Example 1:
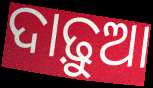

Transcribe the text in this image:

ଦାଢ଼ୁଆ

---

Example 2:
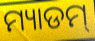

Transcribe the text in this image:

ମ୍ୟାଡମ୍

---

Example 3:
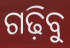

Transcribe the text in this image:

ଗଢ଼ିବୁ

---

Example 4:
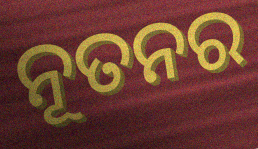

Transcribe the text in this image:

ନୂତନର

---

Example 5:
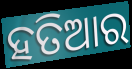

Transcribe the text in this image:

ହତିଆର